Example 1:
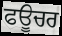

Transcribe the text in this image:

ਫਊਚਰ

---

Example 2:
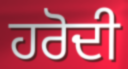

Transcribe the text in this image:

ਹਰੋਦੀ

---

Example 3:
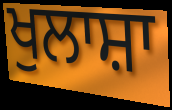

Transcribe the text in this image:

ਖੁਲਾਸ਼ਾ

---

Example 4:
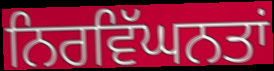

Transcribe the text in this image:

ਨਿਰਵਿੱਘਨਤਾਂ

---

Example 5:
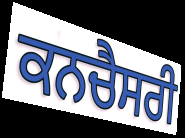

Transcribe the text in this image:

ਕਨਚੈਸਰੀ